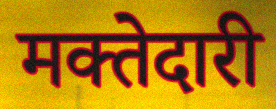
मक्तेदारी